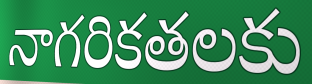
నాగరికతలకు